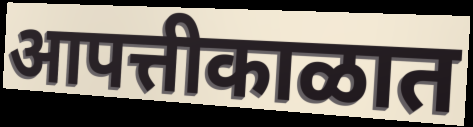
आपत्तीकाळात